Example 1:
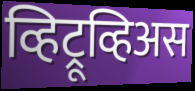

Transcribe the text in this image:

व्हिट्रूव्हिअस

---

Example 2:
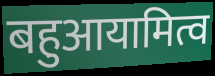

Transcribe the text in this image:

बहुआयामित्व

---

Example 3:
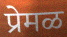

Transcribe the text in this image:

प्रेमळ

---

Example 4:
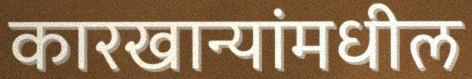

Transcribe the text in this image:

कारखान्यांमधील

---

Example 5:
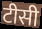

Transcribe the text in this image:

टीसी